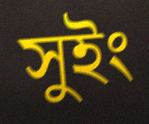
সুইং